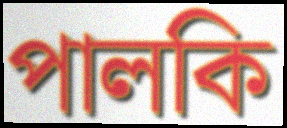
পালকি